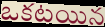
ఒకటయిన